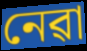
নেৱা